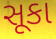
સૂકા